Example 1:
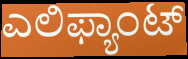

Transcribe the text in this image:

ಎಲಿಫ್ಯಾಂಟ್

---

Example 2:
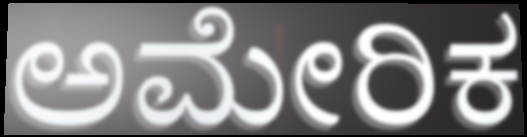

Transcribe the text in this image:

ಅಮೇರಿಕ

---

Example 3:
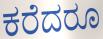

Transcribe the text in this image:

ಕರೆದರೂ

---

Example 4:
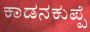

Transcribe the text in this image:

ಕಾಡನಕುಪ್ಪೆ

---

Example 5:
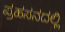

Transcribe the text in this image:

ಪ್ರಹಸನದಲ್ಲಿ